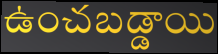
ఉంచబడ్డాయి